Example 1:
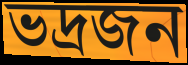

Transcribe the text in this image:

ভদ্রজন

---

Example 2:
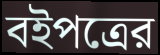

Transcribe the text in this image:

বইপত্রের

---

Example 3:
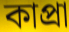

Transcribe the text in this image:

কাপ্রা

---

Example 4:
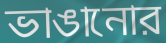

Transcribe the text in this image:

ভাঙানোর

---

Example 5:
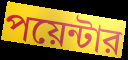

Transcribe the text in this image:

পয়েন্টার